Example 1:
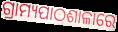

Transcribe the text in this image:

ଗ୍ରାମ୍ୟପାଠଶାଳାରେ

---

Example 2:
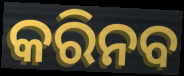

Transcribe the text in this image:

କରିନବ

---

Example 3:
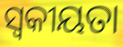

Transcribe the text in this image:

ସ୍ଵକୀୟତା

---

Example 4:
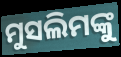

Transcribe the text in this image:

ମୁସଲିମଙ୍କୁ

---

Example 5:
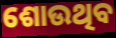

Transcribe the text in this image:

ଶୋଉଥିବ